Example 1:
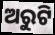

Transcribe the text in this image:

ଅରୁଟି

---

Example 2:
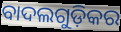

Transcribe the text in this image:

ବାଦଲଗୁଡ଼ିକର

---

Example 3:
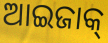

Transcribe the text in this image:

ଆଇଜାକ୍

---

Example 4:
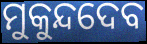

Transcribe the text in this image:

ମୁକୁନ୍ଦଦେବ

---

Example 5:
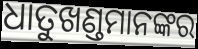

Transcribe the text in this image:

ଧାତୁଖଣ୍ଡମାନଙ୍କର